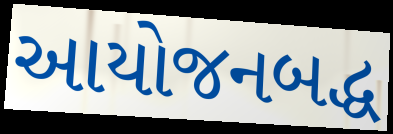
આયોજનબદ્ધ